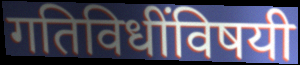
गतिविधींविषयी